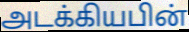
அடக்கியபின்